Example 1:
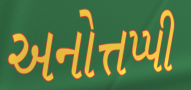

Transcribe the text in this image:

અનોત્તપ્પી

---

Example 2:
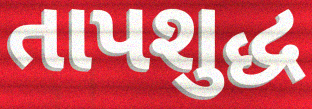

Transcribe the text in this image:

તાપશુદ્ધ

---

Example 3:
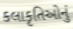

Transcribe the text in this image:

કલાકૃતિઓનું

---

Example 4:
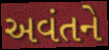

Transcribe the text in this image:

અવંતને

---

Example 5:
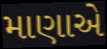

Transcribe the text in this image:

માણાએ